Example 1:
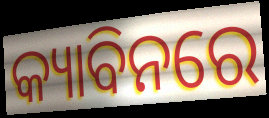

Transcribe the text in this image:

କ୍ୟାବିନରେ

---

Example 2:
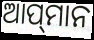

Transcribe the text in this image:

ଆପ୍‌ମାନ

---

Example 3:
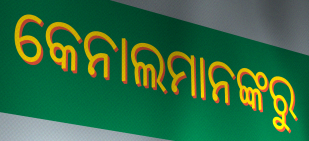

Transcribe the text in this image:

କେନାଲମାନଙ୍କରୁ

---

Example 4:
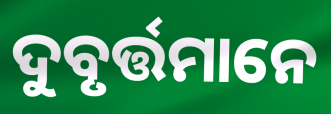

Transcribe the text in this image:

ଦୁବୃର୍ତ୍ତମାନେ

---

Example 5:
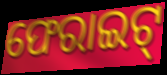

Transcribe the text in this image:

ଫେରାଇଟ୍